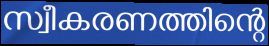
സ്വീകരണത്തിന്റെ